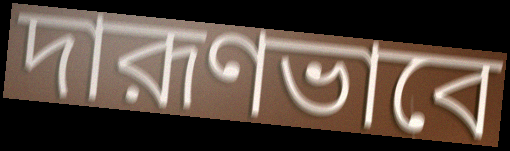
দারূণভাবে